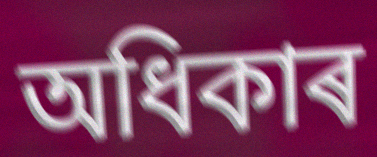
অধিকাৰ